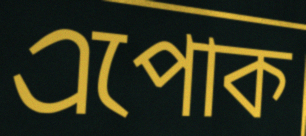
এপোক